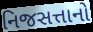
નિજસત્તાનો